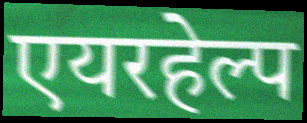
एयरहेल्प